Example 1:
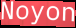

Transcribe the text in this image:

Noyon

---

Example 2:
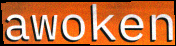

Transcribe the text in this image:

awoken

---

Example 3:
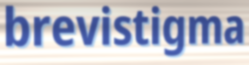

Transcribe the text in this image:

brevistigma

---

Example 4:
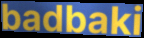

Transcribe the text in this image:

badbaki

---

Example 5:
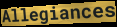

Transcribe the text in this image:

Allegiances